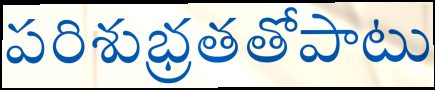
పరిశుభ్రతతోపాటు